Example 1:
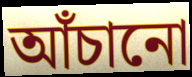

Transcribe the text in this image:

আঁচানো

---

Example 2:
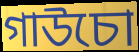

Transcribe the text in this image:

গাউচো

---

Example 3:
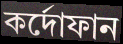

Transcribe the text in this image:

কর্দোফান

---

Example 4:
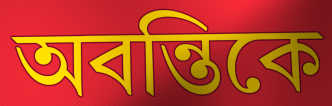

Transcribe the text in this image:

অবন্তিকে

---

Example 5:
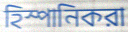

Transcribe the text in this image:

হিস্পানিকরা